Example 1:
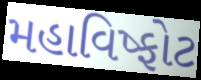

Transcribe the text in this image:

મહાવિષ્ફોટ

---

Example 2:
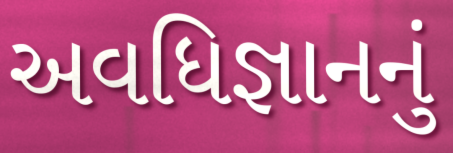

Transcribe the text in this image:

અવધિજ્ઞાનનું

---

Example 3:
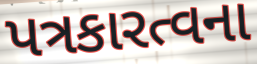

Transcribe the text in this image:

પત્રકારત્વના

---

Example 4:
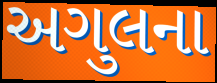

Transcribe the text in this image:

અગુલના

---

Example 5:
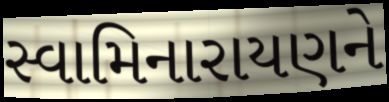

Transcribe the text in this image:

સ્વામિનારાયણને